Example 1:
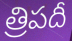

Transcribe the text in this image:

త్రిపదీ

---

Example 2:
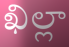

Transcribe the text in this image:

ఖిల్లా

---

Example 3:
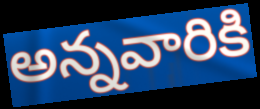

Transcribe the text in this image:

అన్నవారికి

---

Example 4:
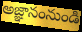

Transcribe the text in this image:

అజ్ఞానంనుండి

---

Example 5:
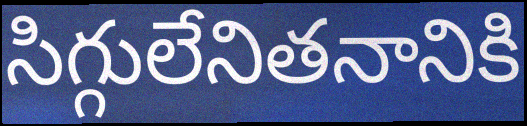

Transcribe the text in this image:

సిగ్గులేనితనానికి